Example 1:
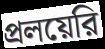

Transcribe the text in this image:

প্রলয়েরি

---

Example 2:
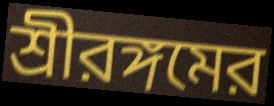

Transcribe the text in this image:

শ্রীরঙ্গমের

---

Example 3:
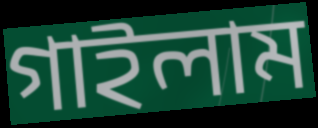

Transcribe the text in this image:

গাইলাম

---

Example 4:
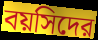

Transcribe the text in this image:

বয়সিদের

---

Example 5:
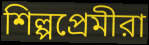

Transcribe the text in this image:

শিল্পপ্রেমীরা